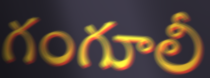
గంగూలీ